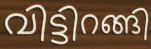
വിട്ടിറങ്ങി